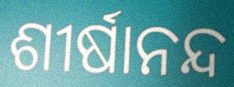
ଶୀର୍ଷାନନ୍ଦ